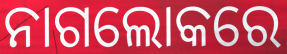
ନାଗଲୋକରେ